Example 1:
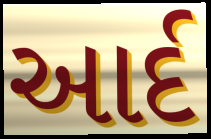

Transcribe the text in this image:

આર્દ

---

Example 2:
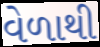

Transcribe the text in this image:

વેળાથી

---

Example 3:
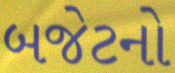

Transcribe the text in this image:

બજેટનો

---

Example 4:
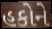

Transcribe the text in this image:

હકોને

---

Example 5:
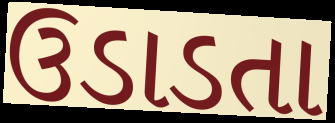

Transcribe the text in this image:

ઉડાડતા